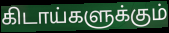
கிடாய்களுக்கும்